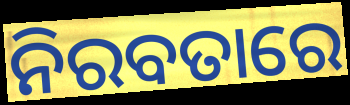
ନିରବତାରେ